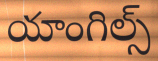
యాంగిల్స్